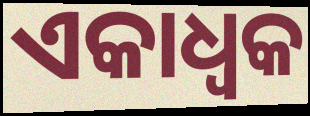
ଏକାଧ୍ଵକ